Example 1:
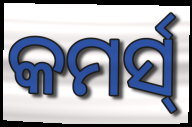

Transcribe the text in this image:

କମର୍ସ୍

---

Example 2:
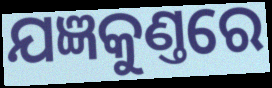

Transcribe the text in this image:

ଯଜ୍ଞକୁଣ୍ତରେ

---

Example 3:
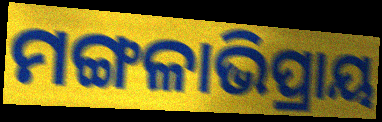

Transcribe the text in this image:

ମଙ୍ଗଳାଭିପ୍ରାୟ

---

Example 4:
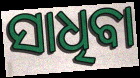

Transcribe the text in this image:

ସାଧିବା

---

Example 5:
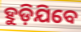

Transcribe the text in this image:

ହୁଡ଼ିଯିବେ